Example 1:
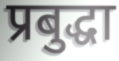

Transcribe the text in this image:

प्रबुद्धा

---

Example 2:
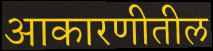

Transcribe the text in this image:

आकारणीतील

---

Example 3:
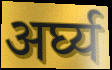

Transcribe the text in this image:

अर्घ्य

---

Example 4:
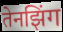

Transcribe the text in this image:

तेनझिंग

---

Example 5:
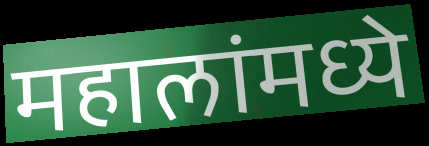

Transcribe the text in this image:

महालांमध्ये